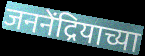
जननेंद्रियाच्या